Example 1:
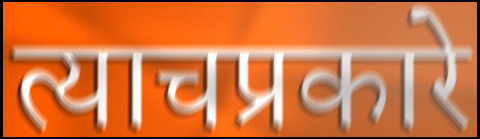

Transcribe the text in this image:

त्याचप्रकारे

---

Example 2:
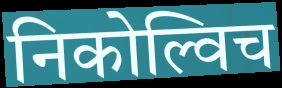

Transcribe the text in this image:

निकोल्विच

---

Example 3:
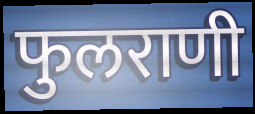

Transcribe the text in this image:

फुलराणी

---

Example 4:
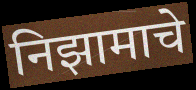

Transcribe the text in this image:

निझामाचे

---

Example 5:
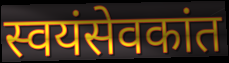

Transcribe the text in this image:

स्वयंसेवकांत